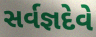
સર્વજ્ઞદેવે